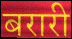
बरारी